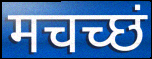
मचच्छं